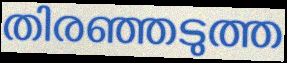
തിരഞ്ഞടുത്ത